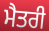
ਮੈਤਰੀ